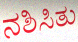
ನಶಿಸಿತು